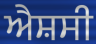
ਐਸ਼ਸੀ